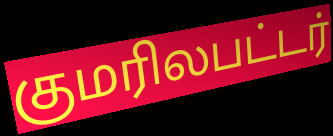
குமரிலபட்டர்